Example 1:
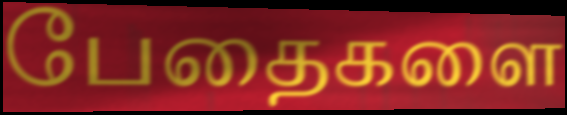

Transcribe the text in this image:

பேதைகளை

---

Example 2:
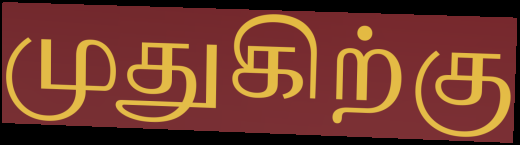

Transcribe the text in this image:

முதுகிற்கு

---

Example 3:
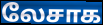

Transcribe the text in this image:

லேசாக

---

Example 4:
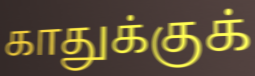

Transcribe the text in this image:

காதுக்குக்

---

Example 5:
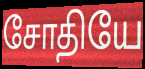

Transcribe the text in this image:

சோதியே